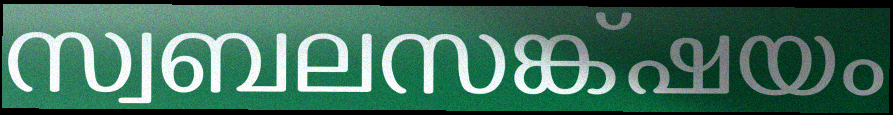
സ്വബലസങ്ക്ഷയം